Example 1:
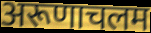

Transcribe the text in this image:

अरूणाचलम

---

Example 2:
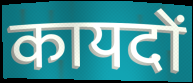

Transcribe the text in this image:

कायदों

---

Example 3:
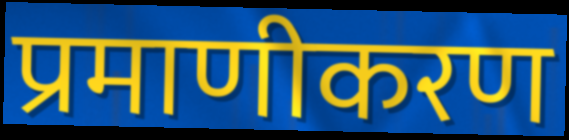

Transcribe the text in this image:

प्रमाणीकरण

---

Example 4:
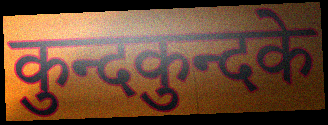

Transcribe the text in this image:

कुन्दकुन्दके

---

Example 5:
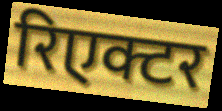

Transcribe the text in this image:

रिएक्टर